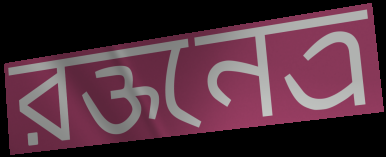
রক্তনেত্র